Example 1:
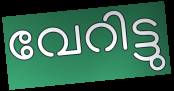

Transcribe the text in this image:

വേറിട്ടു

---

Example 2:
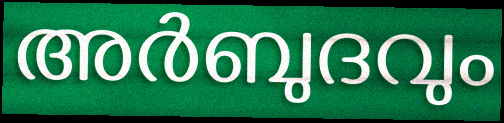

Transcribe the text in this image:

അർബുദവും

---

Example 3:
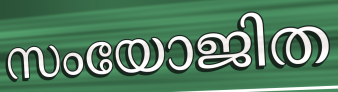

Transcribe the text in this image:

സംയോജിത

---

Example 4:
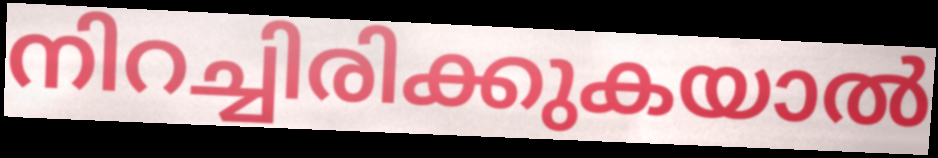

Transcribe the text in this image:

നിറച്ചിരിക്കുകയാൽ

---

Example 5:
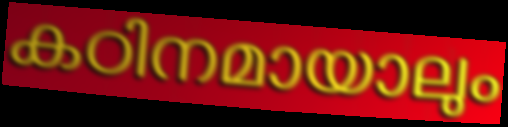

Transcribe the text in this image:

കഠിനമായാലും